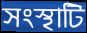
সংস্থাটি